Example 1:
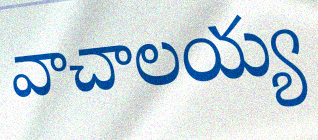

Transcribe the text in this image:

వాచాలయ్య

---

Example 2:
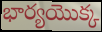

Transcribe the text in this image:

భార్యయొక్క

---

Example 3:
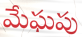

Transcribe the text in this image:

మేఘపు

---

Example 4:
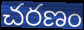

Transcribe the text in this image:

చరణం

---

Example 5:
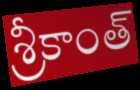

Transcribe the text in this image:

శ్రీకాంత్